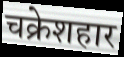
चक्रेशहार